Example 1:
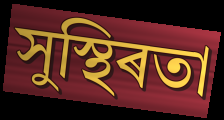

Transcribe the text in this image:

সুস্থিৰতা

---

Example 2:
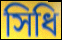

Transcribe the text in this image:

সিধি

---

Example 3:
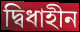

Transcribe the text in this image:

দ্বিধাহীন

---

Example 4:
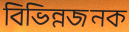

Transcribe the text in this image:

বিভিন্নজনক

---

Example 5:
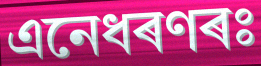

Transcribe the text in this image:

এনেধৰণৰঃ